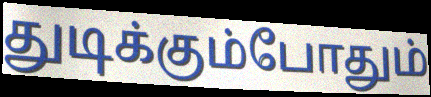
துடிக்கும்போதும்